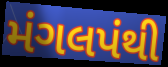
મંગલપંથી